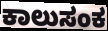
ಕಾಲುಸಂಕ